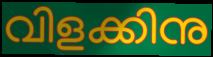
വിളക്കിനു